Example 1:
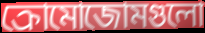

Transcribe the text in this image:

ক্রোমোজোমগুলো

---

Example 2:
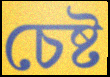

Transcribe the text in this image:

চেষ্ট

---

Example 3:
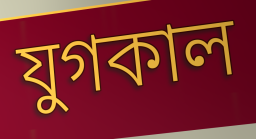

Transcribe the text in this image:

যুগকাল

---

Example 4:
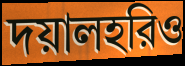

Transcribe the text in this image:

দয়ালহরিও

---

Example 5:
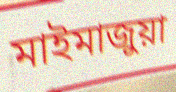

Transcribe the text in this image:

মাইমাজুয়া